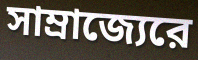
সাম্রাজ্যেরে